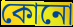
কোনো